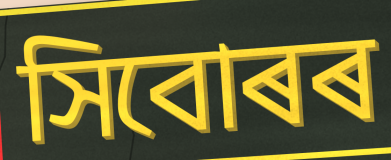
সিবোৰৰ